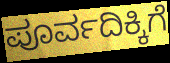
ಪೂರ್ವದಿಕ್ಕಿಗೆ